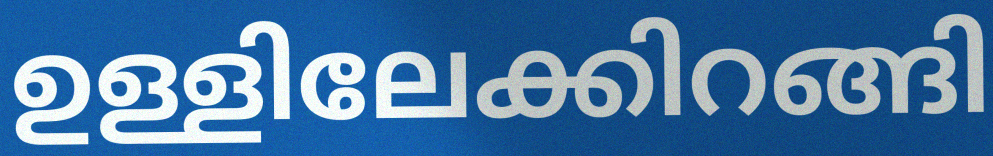
ഉള്ളിലേക്കിറങ്ങി